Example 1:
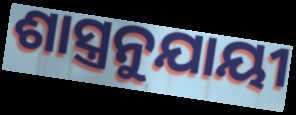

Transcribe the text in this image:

ଶାସ୍ତ୍ରନୁଯାୟୀ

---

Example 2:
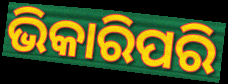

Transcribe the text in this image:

ଭିକାରିପରି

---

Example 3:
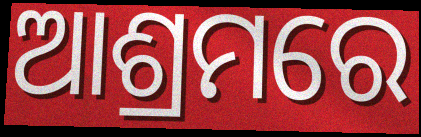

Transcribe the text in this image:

ଆଶ୍ରମରେ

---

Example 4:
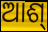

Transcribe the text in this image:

ଆଶ୍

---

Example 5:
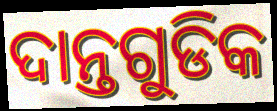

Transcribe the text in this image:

ଦାନ୍ତଗୁଡିକ